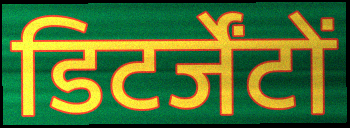
डिटर्जेंटों